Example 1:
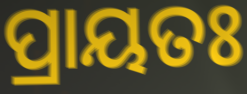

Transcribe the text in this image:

ପ୍ରାୟତଃ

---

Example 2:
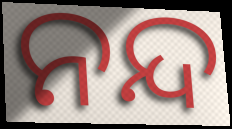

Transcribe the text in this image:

ନନ୍ଦ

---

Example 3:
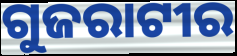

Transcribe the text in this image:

ଗୁଜରାଟୀର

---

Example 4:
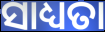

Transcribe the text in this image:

ସାଧ୍ୟତା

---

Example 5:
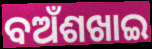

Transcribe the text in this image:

ବଅଁଶଖାଇ